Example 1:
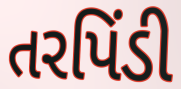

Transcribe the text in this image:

તરપિંડી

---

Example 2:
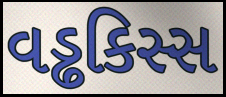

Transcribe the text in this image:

વડ્ઢકિસ્સ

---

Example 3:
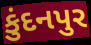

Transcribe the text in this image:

કુંદનપુર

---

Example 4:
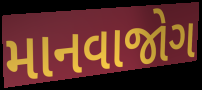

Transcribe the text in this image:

માનવાજોગ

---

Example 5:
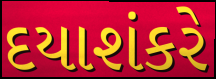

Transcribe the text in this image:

દયાશંકરે